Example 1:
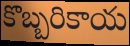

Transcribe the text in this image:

కొబ్బరికాయ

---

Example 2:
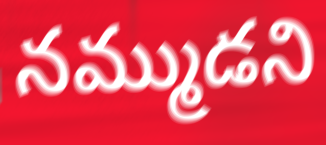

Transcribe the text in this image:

నమ్ముడని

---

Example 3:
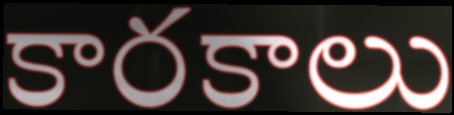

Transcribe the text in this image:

కారకాలు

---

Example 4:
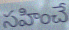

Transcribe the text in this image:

సహించే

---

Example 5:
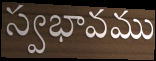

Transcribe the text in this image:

స్వభావము